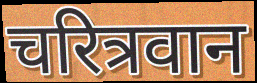
चरित्रवान